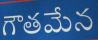
గౌతమేన